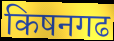
किषनगढ